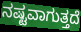
ನಷ್ಟವಾಗುತ್ತದೆ